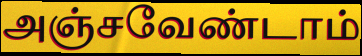
அஞ்சவேண்டாம்